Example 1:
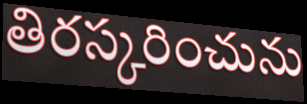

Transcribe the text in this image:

తిరస్కరించును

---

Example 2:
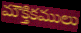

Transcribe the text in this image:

మౌక్తికములు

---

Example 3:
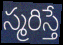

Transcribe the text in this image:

స్మరిస్తే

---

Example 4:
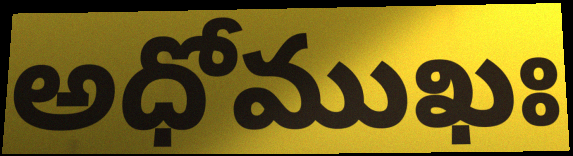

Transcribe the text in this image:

అధోముఖః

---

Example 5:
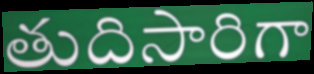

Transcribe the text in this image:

తుదిసారిగా